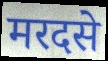
मरदसे